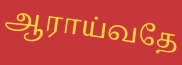
ஆராய்வதே